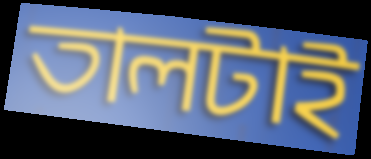
তালটাই